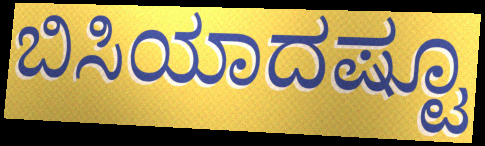
ಬಿಸಿಯಾದಷ್ಟೂ